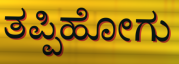
ತಪ್ಪಿಹೋಗು